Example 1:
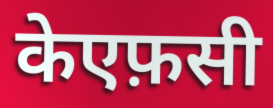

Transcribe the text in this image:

केएफ़सी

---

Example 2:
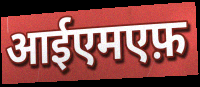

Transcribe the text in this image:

आईएमएफ़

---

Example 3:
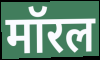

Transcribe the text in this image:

मॉरल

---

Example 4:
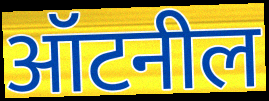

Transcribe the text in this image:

ऑटनील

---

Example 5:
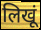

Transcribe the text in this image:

लिखूं